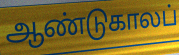
ஆண்டுகாலப்